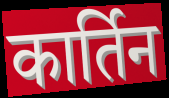
कार्तिन